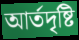
আর্তদৃষ্টি